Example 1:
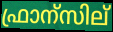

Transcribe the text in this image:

ഫ്രാന്സില്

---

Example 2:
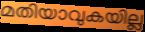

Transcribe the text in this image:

മതിയാവുകയില്ല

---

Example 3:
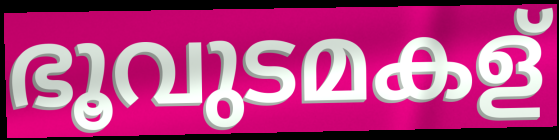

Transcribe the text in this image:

ഭൂവുടമകള്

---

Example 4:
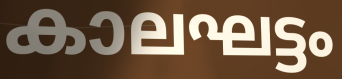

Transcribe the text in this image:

കാലഘട്ടം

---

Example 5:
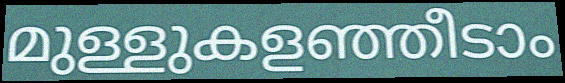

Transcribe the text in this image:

മുള്ളുകളഞ്ഞീടാം